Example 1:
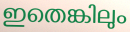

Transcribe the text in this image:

ഇതെങ്കിലും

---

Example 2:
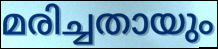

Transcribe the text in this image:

മരിച്ചതായും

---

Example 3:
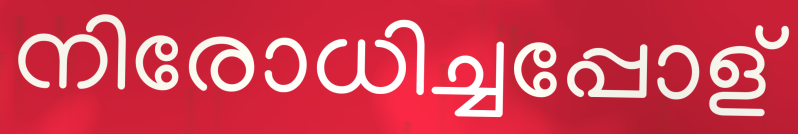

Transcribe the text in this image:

നിരോധിച്ചപ്പോള്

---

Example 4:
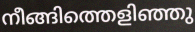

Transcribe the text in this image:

നീങ്ങിത്തെളിഞ്ഞു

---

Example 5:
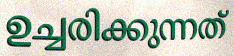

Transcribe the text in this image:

ഉച്ചരിക്കുന്നത്